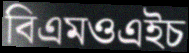
বিএমওএইচ